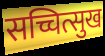
सच्चित्सुख